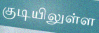
குடியிலுள்ள